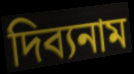
দিব্যনাম